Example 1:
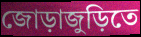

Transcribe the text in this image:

জোড়াজুড়িতে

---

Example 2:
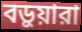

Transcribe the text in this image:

বড়ুয়ারা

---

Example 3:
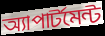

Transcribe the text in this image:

অ্যাপার্টমেন্ট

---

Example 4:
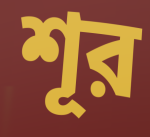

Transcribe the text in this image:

শূর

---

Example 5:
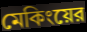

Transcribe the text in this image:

মেকিংয়ের